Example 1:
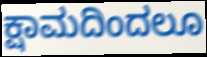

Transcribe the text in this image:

ಕ್ಷಾಮದಿಂದಲೂ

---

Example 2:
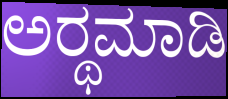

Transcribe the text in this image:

ಅರ್‍ಥಮಾಡಿ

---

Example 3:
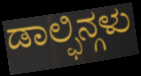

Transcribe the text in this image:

ಡಾಲ್ಫಿನ್ಗಳು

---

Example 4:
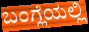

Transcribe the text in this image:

ಬಂಗ್ಲೆಯಲ್ಲಿ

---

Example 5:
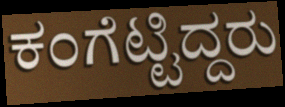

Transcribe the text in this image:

ಕಂಗೆಟ್ಟಿದ್ದರು